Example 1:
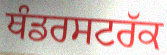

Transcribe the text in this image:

ਥੰਡਰਸਟਰੱਕ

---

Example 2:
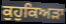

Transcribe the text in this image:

ਕੁਹੁਕਿਅੜਾ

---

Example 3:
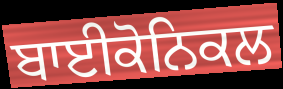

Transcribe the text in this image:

ਬਾਈਕੋਨਿਕਲ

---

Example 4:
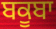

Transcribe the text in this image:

ਬਕੂਬਾ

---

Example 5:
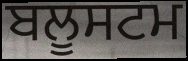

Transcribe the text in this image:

ਬਲੂਸਟਮ